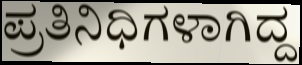
ಪ್ರತಿನಿಧಿಗಳಾಗಿದ್ದ